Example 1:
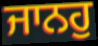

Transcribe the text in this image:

ਜਾਨਹੁ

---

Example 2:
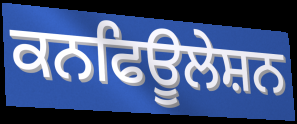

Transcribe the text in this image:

ਕਨਫਿਊਲੇਸ਼ਨ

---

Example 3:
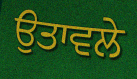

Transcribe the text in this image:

ਉਤਾਵਲੇ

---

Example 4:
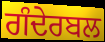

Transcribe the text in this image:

ਗੰਦੇਰਬਲ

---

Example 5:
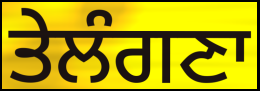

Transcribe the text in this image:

ਤੇਲੰਗਣਾ